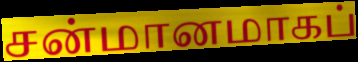
சன்மானமாகப்